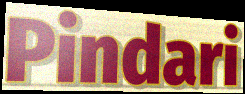
Pindari